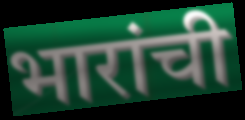
भारांची